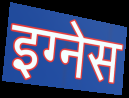
इग्नेस